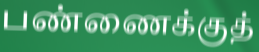
பண்ணைக்குத்